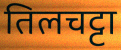
तिलचट्टा